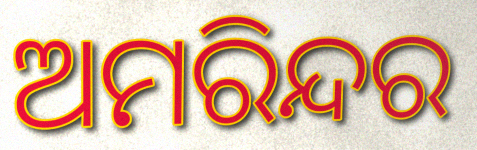
ଅମରିନ୍ଦର